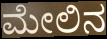
ಮೇಲಿನ